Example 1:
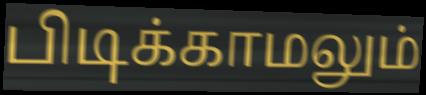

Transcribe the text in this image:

பிடிக்காமலும்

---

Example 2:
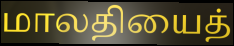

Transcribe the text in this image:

மாலதியைத்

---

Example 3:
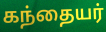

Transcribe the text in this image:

கந்தையர்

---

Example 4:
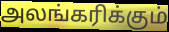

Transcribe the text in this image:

அலங்கரிக்கும்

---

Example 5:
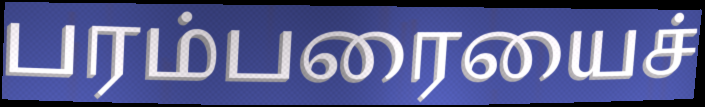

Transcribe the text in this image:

பரம்பரையைச்